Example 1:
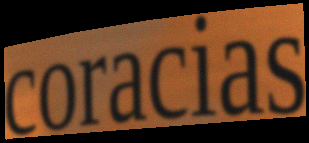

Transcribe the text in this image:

coracias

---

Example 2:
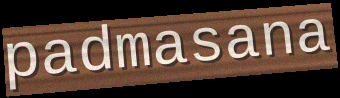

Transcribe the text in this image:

padmasana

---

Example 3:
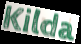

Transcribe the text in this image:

Kilda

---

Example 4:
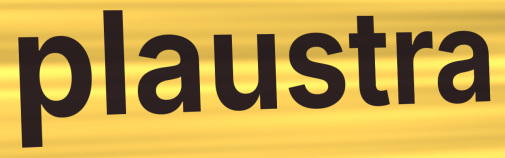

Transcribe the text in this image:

plaustra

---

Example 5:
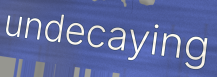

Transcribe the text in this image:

undecaying